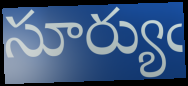
సూర్యుఁ